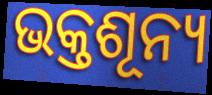
ଭକ୍ତଶୂନ୍ୟ